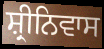
ਸ਼੍ਰੀਨਿਵਾਸ